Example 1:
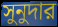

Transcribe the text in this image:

সুনুদার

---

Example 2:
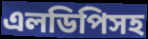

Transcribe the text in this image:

এলডিপিসহ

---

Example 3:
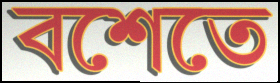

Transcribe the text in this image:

বশেতে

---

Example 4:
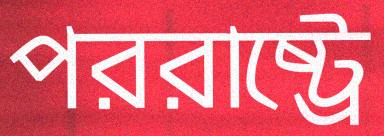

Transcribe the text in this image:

পররাষ্ট্রে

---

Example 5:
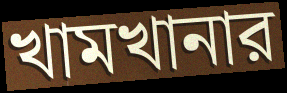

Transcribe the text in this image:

খামখানার